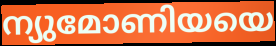
ന്യുമോണിയയെ